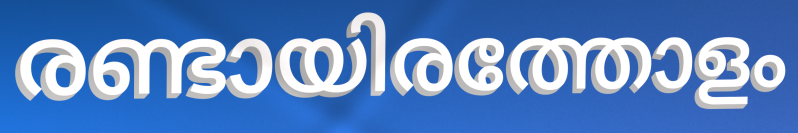
രണ്ടായിരത്തോളം